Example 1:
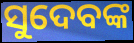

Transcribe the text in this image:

ସୁଦେବଙ୍କ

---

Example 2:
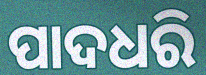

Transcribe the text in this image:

ପାଦଧରି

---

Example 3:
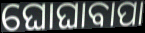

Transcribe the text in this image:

ଘୋଘାବାପା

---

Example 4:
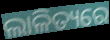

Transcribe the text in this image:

ଲାଳିତ୍ୟରେ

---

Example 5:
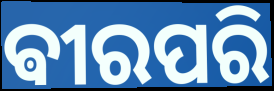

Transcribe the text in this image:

ଵୀରପରି